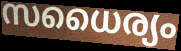
സധൈര്യം